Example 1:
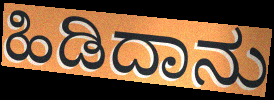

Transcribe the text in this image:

ಹಿಡಿದಾನು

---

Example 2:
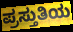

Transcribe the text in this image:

ಪ್ರಸ್ತುತಿಯ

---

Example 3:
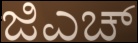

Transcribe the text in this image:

ಜಿಎಚ್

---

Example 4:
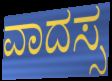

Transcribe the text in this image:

ವಾದಸ್ಸ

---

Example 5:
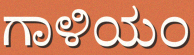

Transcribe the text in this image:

ಗಾಳಿಯಂ